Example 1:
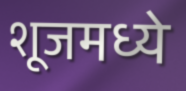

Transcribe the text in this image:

शूजमध्ये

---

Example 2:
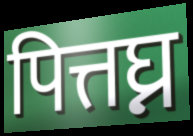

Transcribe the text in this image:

पित्तघ्न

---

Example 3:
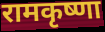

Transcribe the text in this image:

रामकृष्णा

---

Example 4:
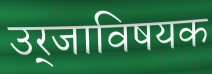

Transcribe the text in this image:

उर्जाविषयक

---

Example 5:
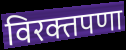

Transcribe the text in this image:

विरक्तपणा